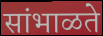
सांभाळते